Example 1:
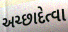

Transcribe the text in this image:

અચ્છાદેત્વા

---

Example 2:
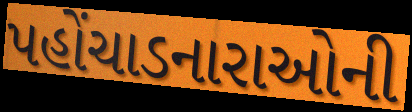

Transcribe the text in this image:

પહોંચાડનારાઓની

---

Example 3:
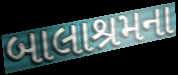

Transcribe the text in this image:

બાલાશ્રમના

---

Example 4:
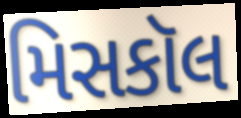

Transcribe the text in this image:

મિસકૉલ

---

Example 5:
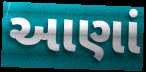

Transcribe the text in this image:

આણાં